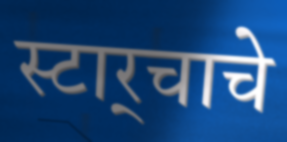
स्टार्चाचे